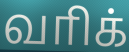
வரிக்